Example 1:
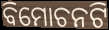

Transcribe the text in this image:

ବିମୋଚନଟି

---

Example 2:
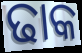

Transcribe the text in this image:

ଢାକ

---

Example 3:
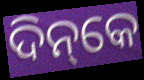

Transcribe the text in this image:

ଦିନ୍‌କେ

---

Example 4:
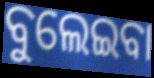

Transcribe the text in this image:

ବୁଲେଇବା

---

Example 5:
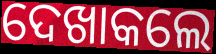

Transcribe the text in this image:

ଦେଖାକଲେ